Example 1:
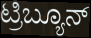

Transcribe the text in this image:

ಟ್ರಿಬ್ಯೂನ್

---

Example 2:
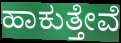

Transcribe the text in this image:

ಹಾಕುತ್ತೇವೆ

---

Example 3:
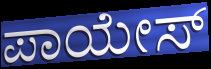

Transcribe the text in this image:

ಪಾಯೇಸ್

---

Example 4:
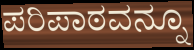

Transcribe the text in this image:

ಪರಿಪಾಠವನ್ನೂ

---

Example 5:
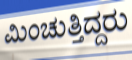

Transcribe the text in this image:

ಮಿಂಚುತ್ತಿದ್ದರು